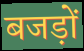
बजड़ों